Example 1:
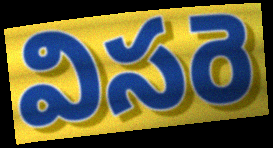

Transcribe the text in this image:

విసరె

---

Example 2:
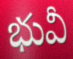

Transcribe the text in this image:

భువీ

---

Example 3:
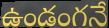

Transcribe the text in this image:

ఉండంగనే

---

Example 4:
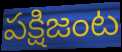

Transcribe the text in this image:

పక్షిజంట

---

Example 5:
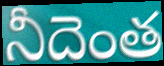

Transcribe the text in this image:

నీదెంత